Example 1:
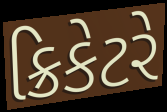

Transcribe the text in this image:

ક્રિકેટરે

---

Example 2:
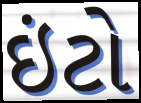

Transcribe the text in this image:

ઇંટો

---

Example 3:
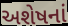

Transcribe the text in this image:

અશેષનાં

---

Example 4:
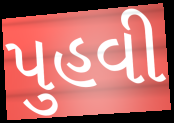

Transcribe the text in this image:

પુહવી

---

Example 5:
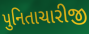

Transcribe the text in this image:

પુનિતાચારીજી